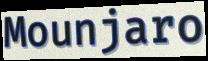
Mounjaro